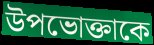
উপভোক্তাকে